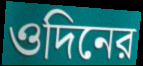
ওদিনের